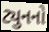
ટ્યુનનો